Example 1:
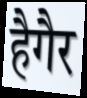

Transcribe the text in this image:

हैगैर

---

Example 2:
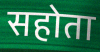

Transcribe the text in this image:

सहोता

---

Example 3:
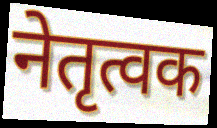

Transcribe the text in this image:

नेतृत्वक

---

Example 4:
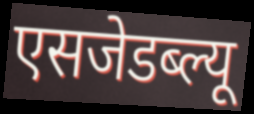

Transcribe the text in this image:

एसजेडब्ल्यू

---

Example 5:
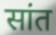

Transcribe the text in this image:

सांत